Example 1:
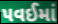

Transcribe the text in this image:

પવઈમાં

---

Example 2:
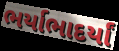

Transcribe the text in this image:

ભર્યાભાદર્યાં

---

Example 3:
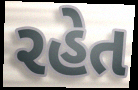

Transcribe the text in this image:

રહેત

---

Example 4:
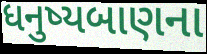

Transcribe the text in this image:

ધનુષ્યબાણના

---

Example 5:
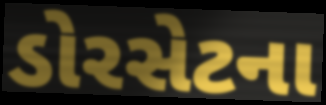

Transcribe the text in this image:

ડોરસેટના